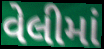
વેલીમાં